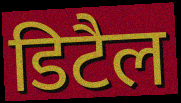
डिटैल